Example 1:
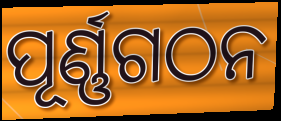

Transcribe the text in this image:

ପୂର୍ଣ୍ଣଗଠନ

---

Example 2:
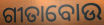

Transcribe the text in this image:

ଗୀତାବୋଉ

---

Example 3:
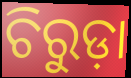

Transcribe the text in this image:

ଚିରୁଡ଼ା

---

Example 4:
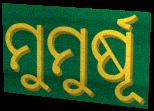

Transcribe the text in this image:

ମୁମୁର୍ଷୂ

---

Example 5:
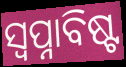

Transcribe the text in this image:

ସ୍ୱପ୍ନାବିଷ୍ଟ